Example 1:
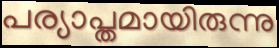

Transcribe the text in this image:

പര്യാപ്തമായിരുന്നു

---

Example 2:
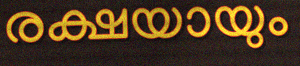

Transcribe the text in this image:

രക്ഷയായും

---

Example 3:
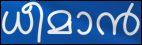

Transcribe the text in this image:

ധീമാൻ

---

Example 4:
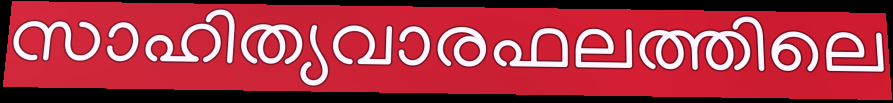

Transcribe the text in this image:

സാഹിത്യവാരഫലത്തിലെ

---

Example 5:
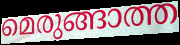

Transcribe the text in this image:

മെരുങ്ങാത്ത